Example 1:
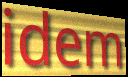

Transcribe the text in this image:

idem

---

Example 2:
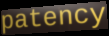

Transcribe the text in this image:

patency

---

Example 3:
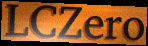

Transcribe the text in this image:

LCZero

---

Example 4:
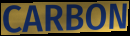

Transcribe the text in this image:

CARBON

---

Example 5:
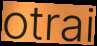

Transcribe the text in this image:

otrai